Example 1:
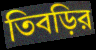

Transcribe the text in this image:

তিবড়ির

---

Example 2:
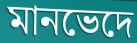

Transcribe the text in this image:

মানভেদে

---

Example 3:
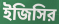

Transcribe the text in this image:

ইজিসির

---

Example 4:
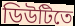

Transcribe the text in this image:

ডিউটিতে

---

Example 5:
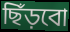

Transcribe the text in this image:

ছিঁড়বো